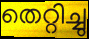
തെറ്റിച്ചു